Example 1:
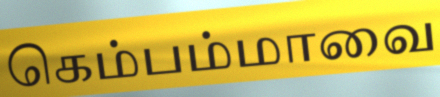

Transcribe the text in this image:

கெம்பம்மாவை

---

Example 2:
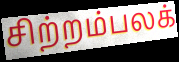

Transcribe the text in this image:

சிற்றம்பலக்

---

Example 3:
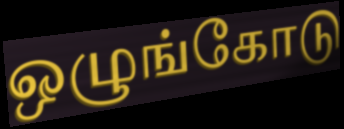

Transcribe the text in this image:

ஒழுங்கோடு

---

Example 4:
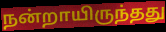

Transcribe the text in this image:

நன்றாயிருந்தது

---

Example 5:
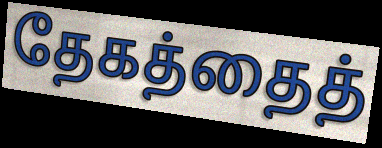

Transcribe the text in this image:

தேகத்தைத்